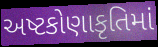
અષ્ટકોણાકૃતિમાં